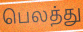
பெலத்து